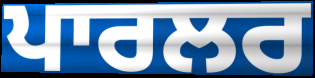
ਪਾਰਲਰ